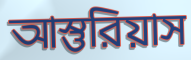
আস্তুরিয়াস